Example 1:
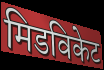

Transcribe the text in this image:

मिडविकेट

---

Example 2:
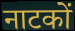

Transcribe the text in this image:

नाटकों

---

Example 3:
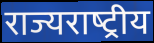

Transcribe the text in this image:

राज्यराष्ट्रीय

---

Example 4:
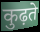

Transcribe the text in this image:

कुढ़ते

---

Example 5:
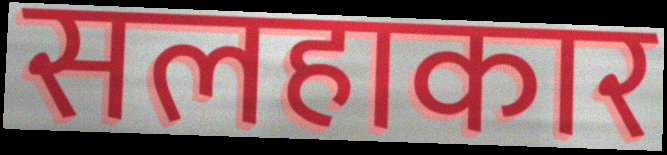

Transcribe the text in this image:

सलहाकार